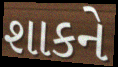
શાકને